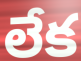
లేక